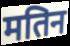
मतिन